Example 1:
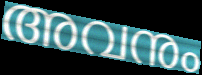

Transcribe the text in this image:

അവനും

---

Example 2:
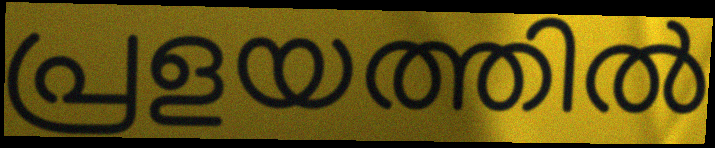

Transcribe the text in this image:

പ്രളയത്തിൽ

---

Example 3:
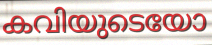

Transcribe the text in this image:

കവിയുടെയോ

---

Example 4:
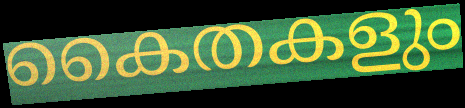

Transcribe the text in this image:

കൈതകളും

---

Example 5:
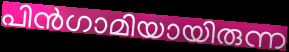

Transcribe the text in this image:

പിൻഗാമിയായിരുന്ന